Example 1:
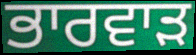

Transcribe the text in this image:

ਭਾਰਵਾੜ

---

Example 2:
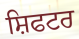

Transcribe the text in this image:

ਸ਼ਿਫਟਰ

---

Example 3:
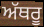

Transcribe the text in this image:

ਅੱਥਰੂ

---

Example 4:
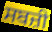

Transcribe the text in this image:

ਸਬਜ਼ੀ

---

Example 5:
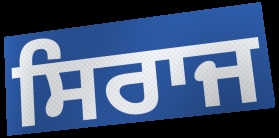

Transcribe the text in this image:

ਸਿਰਾਜ